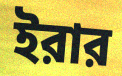
ইরার